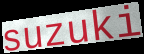
suzuki